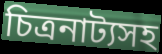
চিত্রনাট্যসহ